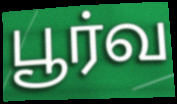
பூர்வ